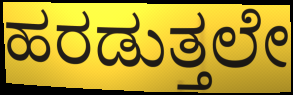
ಹರಡುತ್ತಲೇ